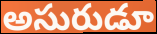
అసురుడూ